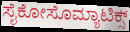
ಸೈಕೋಸೊಮ್ಯಾಟಿಕ್ಸ್